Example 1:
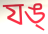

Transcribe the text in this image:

যঙ্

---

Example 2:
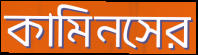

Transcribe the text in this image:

কামিনসের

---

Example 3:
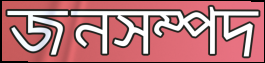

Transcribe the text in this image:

জনসম্পদ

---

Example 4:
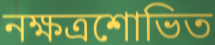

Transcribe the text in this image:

নক্ষত্রশোভিত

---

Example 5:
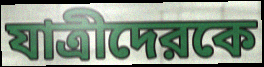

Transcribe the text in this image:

যাত্রীদেরকে